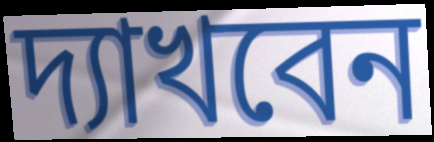
দ্যাখবেন